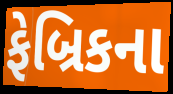
ફેબ્રિકના